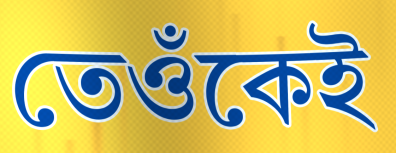
তেওঁকেই